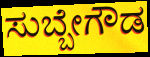
ಸುಬ್ಬೇಗೌಡ